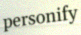
personify